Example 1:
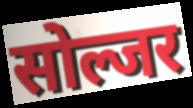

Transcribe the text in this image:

सोल्जर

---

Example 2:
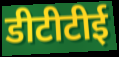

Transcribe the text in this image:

डीटीटीई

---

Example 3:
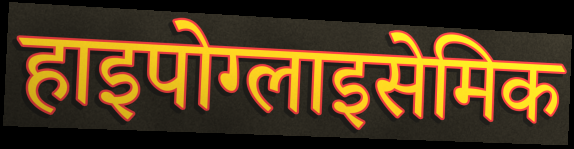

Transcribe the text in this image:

हाइपोग्लाइसेमिक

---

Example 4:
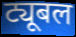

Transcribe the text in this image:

ट्यूबल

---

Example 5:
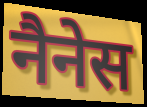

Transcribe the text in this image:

नैनेस